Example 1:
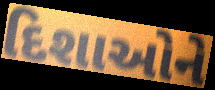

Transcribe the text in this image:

દિશાઓને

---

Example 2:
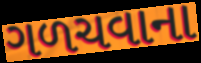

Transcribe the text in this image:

ગળચવાના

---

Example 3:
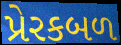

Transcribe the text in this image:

પ્રેરકબળ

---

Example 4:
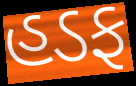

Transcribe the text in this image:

હડફ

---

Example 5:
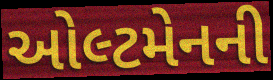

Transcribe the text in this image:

ઓલ્ટમેનની